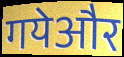
गयेऔर